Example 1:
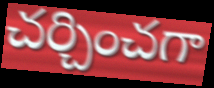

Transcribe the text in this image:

చర్చించగా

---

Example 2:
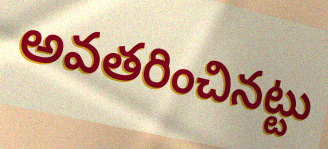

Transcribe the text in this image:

అవతరించినట్టు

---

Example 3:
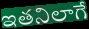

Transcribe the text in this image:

ఇతనిలాగే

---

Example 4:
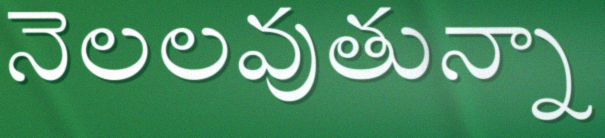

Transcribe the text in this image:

నెలలవుతున్నా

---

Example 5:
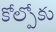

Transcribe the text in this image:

కోల్పోకు